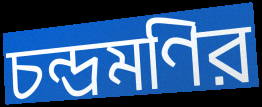
চন্দ্রমণির